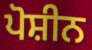
ਪੋਸ਼ੀਨ